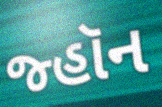
જ્હૉન